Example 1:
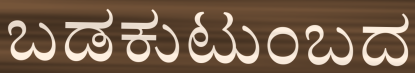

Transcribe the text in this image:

ಬಡಕುಟುಂಬದ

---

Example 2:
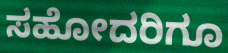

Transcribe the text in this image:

ಸಹೋದರಿಗೂ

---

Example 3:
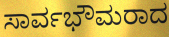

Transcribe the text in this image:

ಸಾರ್ವಭೌಮರಾದ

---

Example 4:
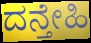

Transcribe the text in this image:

ದನ್ತೇಹಿ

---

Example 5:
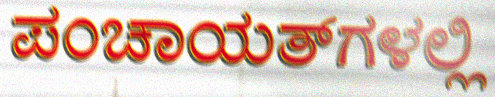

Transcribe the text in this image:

ಪಂಚಾಯತ್‌ಗಳಲ್ಲಿ